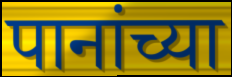
पानांच्या